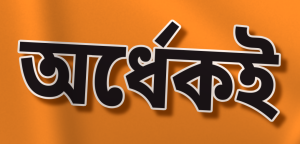
অর্ধেকই